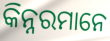
କିନ୍ନରମାନେ